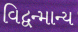
વિદ્વન્માન્ય